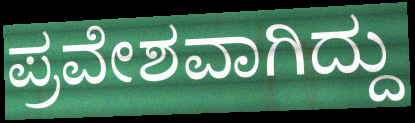
ಪ್ರವೇಶವಾಗಿದ್ದು